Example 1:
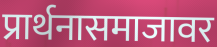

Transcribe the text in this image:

प्रार्थनासमाजावर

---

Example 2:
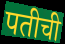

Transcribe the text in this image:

पतीची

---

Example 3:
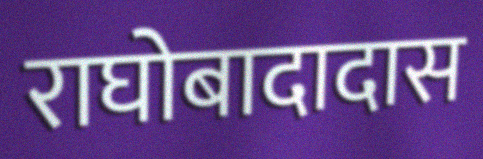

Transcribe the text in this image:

राघोबादादास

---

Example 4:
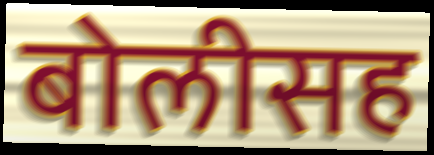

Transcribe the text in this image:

बोलीसह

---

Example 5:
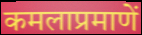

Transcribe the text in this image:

कमलाप्रमाणें